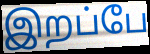
இறப்பே